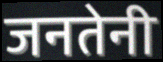
जनतेनी